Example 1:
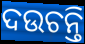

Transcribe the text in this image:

ଦଉଚନ୍ତି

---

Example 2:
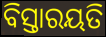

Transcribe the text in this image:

ବିସ୍ତାରୟତି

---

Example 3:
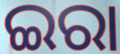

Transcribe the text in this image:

ଇରା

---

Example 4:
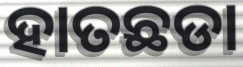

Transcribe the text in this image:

ହାତଛଡା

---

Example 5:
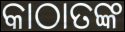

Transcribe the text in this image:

କାଠାତଙ୍କ